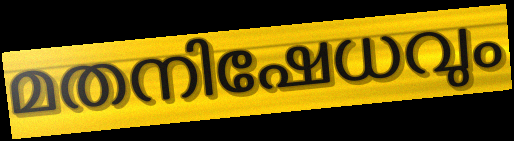
മതനിഷേധവും